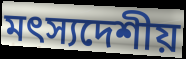
মৎস্যদেশীয়